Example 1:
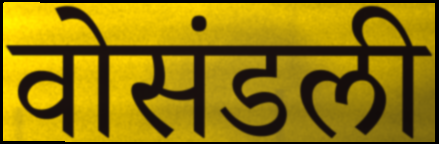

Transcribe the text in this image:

वोसंडली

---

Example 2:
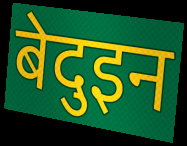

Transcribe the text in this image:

बेदुइन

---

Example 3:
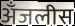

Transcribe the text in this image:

अँजलीस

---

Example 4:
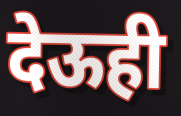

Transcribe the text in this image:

देऊही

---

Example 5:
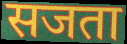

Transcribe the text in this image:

सजता